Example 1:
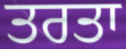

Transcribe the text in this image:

ਤਰਤਾ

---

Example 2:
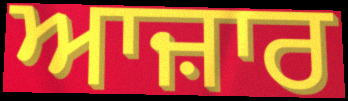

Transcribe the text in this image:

ਆਜ਼ਾਰ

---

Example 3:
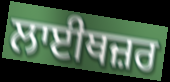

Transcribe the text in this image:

ਲਾਈਥਜ਼ਰ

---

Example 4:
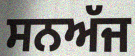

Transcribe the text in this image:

ਸਨਅੱਜ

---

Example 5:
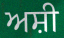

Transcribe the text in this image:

ਅਸ਼ੀ